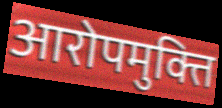
आरोपमुक्ति